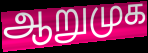
ஆறுமுக